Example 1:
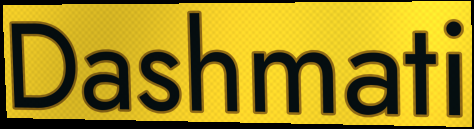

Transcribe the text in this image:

Dashmati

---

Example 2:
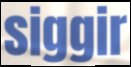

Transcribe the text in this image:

siggir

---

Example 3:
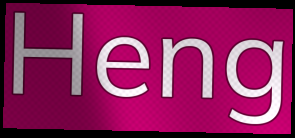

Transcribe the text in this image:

Heng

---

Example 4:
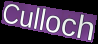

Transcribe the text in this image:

Culloch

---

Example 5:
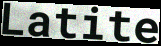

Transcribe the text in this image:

Latite